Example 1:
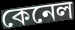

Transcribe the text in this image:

কেনেল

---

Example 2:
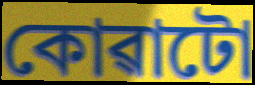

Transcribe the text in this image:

কোৱাটো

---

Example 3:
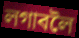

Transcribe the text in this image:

লগাবলৈ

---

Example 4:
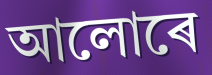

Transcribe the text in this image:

আলোৰে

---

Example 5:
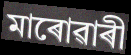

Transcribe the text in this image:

মাৰোৱাৰী